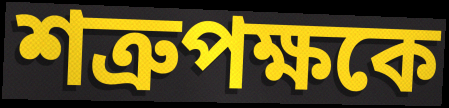
শত্রুপক্ষকে